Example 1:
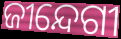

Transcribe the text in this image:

ଜୀନ୍ଦେଗୀ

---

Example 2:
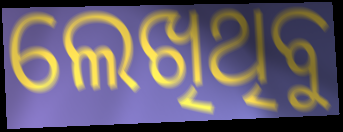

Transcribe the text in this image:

ଲେଖିଥିବୁ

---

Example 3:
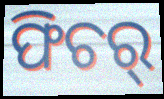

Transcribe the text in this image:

ଫିଚର୍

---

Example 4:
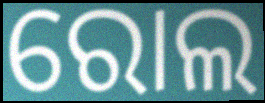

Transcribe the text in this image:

ରୋଲ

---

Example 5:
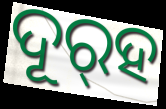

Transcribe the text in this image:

ଦୂର୍‌ହ